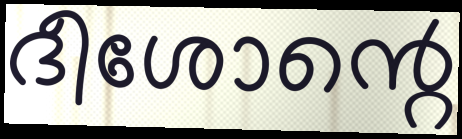
ദീശോന്റെ